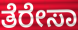
ತೆರೇಸಾ